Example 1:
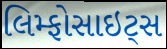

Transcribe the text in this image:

લિમ્ફોસાઇટ્સ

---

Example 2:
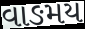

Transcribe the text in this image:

વાઙમય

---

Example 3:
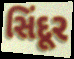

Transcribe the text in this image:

સિંદૂર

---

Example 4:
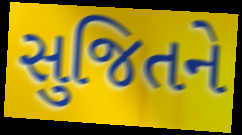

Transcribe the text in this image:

સુજિતને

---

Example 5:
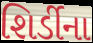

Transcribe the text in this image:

શિર્ડીના